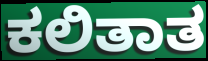
ಕಲಿತಾತ